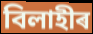
বিলাহীৰ